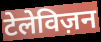
टेलेविज़न